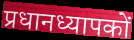
प्रधानध्यापकों